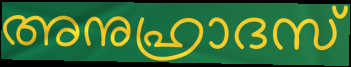
അനുഹ്രാദസ്